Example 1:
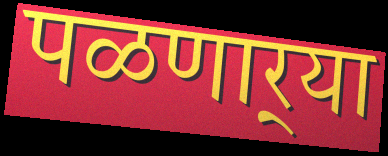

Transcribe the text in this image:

पळणार्या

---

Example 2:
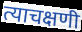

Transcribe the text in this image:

त्याचक्षणी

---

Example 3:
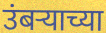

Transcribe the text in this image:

उंबऱ्याच्या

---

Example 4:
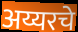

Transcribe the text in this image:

अय्यरचे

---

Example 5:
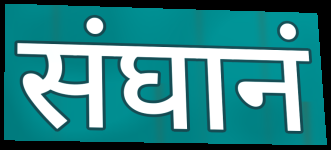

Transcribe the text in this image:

संघानं